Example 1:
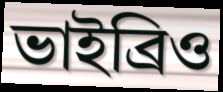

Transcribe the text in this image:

ভাইব্রিও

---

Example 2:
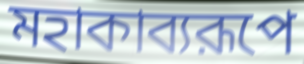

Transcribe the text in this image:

মহাকাব্যরূপে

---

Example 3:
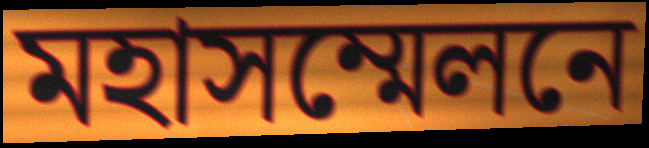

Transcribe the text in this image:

মহাসম্মেলনে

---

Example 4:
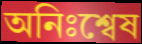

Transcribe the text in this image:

অনিঃশ্বেষ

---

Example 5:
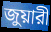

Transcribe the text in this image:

জুয়ারী